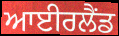
ਆਈਰਲੈਂਡ